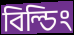
বিল্ডিং